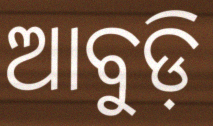
ଆବୁଡ଼ି